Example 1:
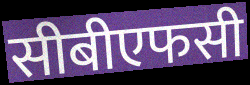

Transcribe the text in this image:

सीबीएफसी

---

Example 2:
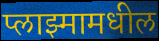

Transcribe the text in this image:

प्लाझ्मामधील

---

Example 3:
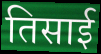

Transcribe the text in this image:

तिसाई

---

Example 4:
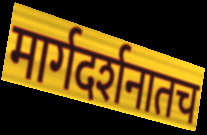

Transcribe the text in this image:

मार्गदर्शनातच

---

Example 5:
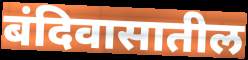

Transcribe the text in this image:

बंदिवासातील